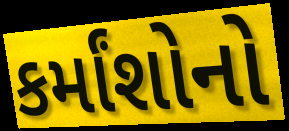
કર્માંશોનો